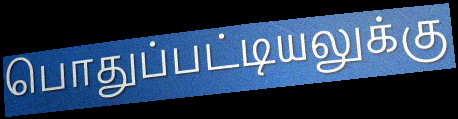
பொதுப்பட்டியலுக்கு